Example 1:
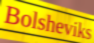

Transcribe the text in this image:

Bolsheviks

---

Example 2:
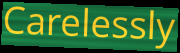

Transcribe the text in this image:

Carelessly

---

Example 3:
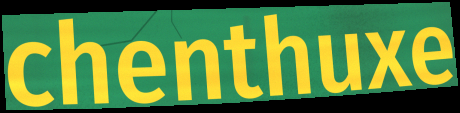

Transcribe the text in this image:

chenthuxe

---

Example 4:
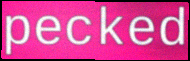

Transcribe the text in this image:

pecked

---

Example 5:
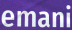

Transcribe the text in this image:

emani